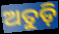
ଅତୁଡ଼ି